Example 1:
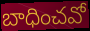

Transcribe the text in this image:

బాధించవో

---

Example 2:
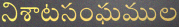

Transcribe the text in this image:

నిశాటసంఘముల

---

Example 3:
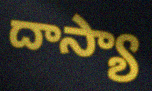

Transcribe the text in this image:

దాస్యా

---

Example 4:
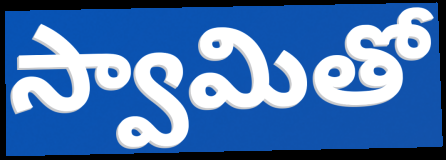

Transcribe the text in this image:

స్వామితో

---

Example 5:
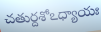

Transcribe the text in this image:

చతుర్దశోఽధ్యాయః